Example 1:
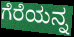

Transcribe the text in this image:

ಗೆರೆಯನ್ನ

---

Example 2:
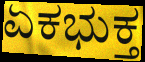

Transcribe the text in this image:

ಏಕಭುಕ್ತ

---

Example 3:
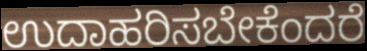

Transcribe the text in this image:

ಉದಾಹರಿಸಬೇಕೆಂದರೆ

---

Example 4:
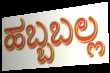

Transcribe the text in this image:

ಹಬ್ಬಬಲ್ಲ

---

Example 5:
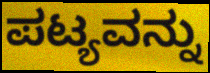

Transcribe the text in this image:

ಪಟ್ಯವನ್ನು